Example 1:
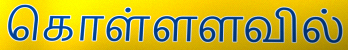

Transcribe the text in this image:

கொள்ளளவில்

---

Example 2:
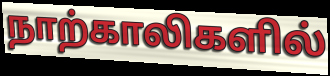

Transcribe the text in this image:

நாற்காலிகளில்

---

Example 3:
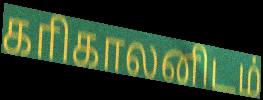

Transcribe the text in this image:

கரிகாலனிடம்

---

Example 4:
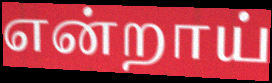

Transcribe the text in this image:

என்றாய்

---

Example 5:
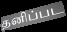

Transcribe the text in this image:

தனிப்பட